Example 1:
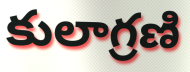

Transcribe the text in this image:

కులాగ్రణి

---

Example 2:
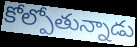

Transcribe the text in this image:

కోల్పోతున్నాడు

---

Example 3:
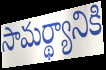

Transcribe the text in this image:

సామర్థ్యానికి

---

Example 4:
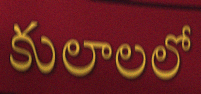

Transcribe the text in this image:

కులాలలో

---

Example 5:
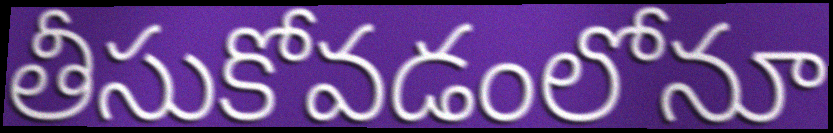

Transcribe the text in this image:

తీసుకోవడంలోనూ